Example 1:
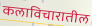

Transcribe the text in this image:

कलाविचारातील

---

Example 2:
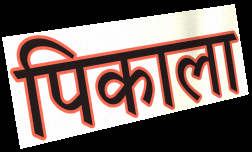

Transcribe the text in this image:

पिकाला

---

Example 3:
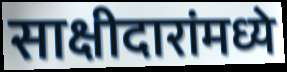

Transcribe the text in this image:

साक्षीदारांमध्ये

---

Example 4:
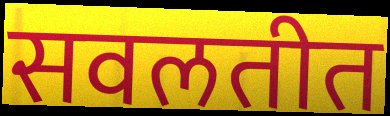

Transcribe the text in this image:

सवलतीत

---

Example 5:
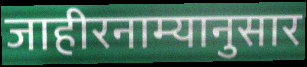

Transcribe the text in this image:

जाहीरनाम्यानुसार